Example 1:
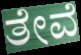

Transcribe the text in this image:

ತೇವೆ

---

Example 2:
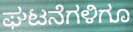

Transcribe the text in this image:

ಘಟನೆಗಳಿಗೂ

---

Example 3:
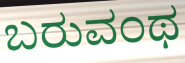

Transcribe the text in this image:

ಬರುವಂಥ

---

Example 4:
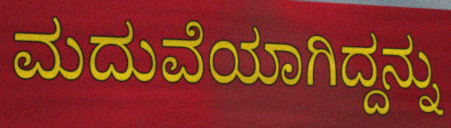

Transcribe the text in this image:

ಮದುವೆಯಾಗಿದ್ದನ್ನು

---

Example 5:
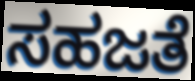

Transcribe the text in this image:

ಸಹಜತೆ